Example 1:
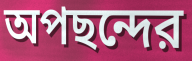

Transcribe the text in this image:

অপছন্দের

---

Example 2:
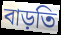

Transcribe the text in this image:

বাড়তি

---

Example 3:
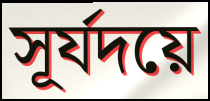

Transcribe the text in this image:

সূর্যদয়ে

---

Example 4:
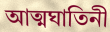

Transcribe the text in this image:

আত্মঘাতিনী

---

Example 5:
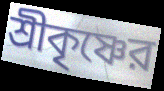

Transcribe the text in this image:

শ্রীকৃষ্ণের